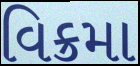
વિક્રમા